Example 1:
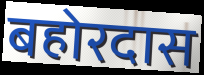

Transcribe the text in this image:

बहोरदास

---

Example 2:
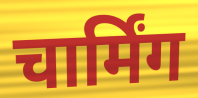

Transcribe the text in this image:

चार्मिंग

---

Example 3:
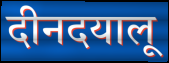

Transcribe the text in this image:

दीनदयालू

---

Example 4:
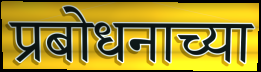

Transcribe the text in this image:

प्रबोधनाच्या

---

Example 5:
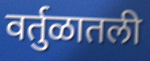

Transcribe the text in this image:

वर्तुळातली